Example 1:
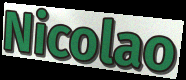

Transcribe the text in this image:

Nicolao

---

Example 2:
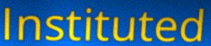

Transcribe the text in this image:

Instituted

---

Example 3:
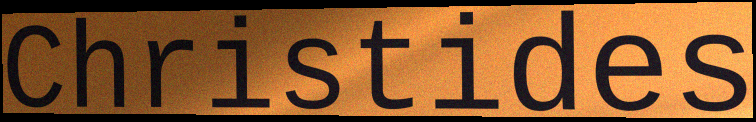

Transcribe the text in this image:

Christides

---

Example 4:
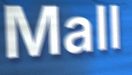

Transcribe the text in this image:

Mall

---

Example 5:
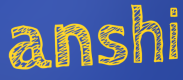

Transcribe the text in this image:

anshi